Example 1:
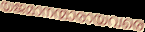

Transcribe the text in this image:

യജമാനന്മാരായവരെ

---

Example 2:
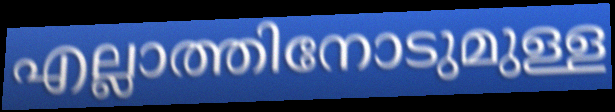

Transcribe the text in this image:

എല്ലാത്തിനോടുമുള്ള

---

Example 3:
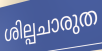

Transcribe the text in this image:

ശില്പചാരുത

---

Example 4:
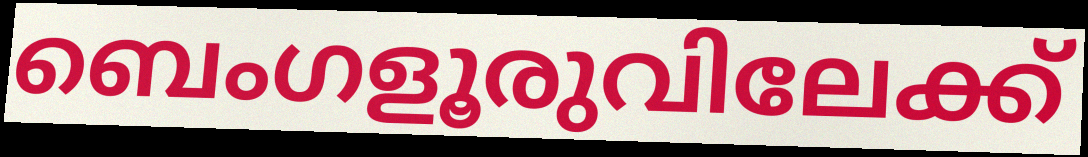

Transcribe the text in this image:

ബെംഗളൂരുവിലേക്ക്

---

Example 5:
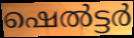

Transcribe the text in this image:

ഷെൽട്ടർ